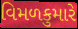
વિમળકુમારે